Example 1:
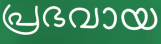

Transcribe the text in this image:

പ്രഭവായ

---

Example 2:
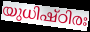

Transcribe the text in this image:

യുധിഷ്ഠിരഃ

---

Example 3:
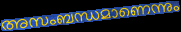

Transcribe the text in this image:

അസംബന്ധമാണെന്നും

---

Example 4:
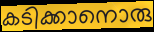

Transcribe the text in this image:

കടിക്കാനൊരു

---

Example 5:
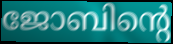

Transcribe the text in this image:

ജോബിന്റെ